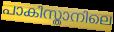
പാകിസ്താനിലെ